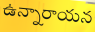
ఉన్నారాయన